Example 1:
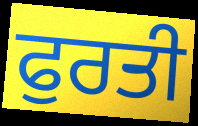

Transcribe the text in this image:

ਫੁਰਤੀ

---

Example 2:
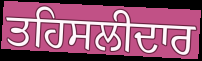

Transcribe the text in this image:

ਤਹਿਸਲੀਦਾਰ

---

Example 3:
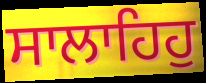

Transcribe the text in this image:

ਸਾਲਾਹਿਹੁ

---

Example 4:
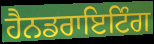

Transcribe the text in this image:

ਹੈਨਡਰਾਇਟਿੰਗ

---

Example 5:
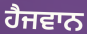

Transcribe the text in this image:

ਹੈਜਵਾਨ